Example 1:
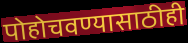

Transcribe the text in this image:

पोहोचवण्यासाठीही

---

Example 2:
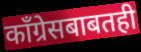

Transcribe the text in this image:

काँग्रेसबाबतही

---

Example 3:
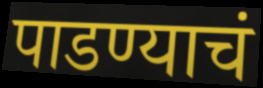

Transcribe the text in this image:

पाडण्याचं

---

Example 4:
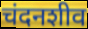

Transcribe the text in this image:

चंदनशीव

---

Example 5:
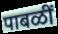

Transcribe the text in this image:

पाबळीं